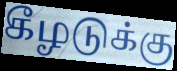
கீழடுக்கு